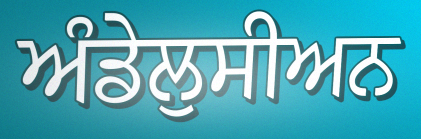
ਅੰਡੇਲੁਸੀਅਨ